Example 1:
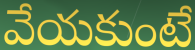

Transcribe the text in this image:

వేయకుంటే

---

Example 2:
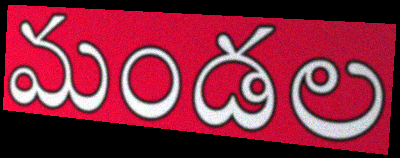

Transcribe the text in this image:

మండల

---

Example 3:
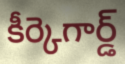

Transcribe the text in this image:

కీర్కెగార్డ్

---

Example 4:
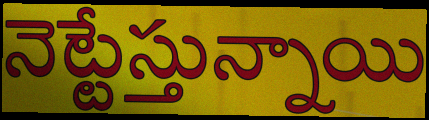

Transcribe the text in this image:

నెట్టేస్తున్నాయి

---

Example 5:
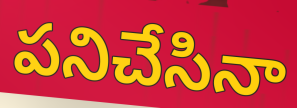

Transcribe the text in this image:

పనిచేసినా